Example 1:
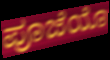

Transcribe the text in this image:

ಪೂಜೆಯೊ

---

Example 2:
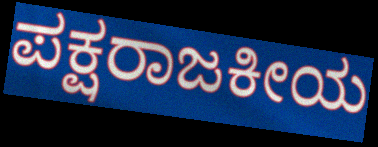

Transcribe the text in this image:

ಪಕ್ಷರಾಜಕೀಯ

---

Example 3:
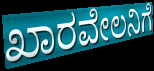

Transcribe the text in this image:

ಖಾರವೇಲನಿಗೆ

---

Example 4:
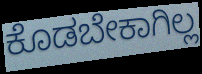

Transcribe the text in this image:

ಕೊಡಬೇಕಾಗಿಲ್ಲ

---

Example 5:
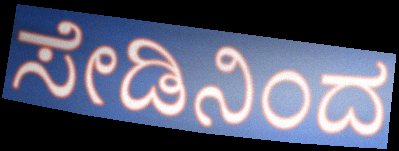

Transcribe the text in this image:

ಸೇಡಿನಿಂದ